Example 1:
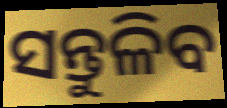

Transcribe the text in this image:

ସନ୍ତୁଳିବ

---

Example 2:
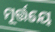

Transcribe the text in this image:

ମୂର୍ତ୍ତୟେ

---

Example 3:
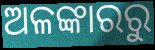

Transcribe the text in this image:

ଅଳଙ୍କାରରୁ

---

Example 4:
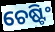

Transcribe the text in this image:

ଚେଷ୍ଟିଂ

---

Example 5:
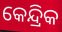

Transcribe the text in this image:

କେନ୍ଦ୍ରିକ